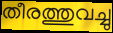
തീരത്തുവച്ചു